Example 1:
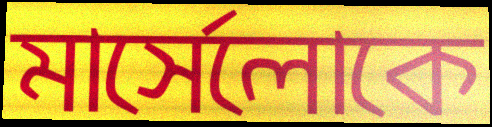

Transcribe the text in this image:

মার্সেলোকে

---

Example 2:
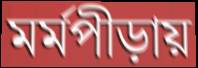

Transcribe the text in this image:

মর্মপীড়ায়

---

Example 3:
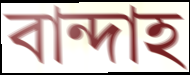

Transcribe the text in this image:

বান্দাহ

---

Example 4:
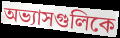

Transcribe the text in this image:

অভ্যাসগুলিকে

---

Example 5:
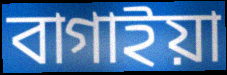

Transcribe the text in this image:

বাগাইয়া